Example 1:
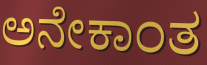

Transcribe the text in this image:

ಅನೇಕಾಂತ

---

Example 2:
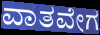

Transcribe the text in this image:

ವಾತವೇಗ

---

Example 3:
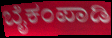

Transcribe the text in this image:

ಬೈಕಂಪಾಡಿ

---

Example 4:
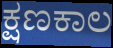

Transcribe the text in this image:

ಕ್ಷಣಕಾಲ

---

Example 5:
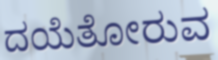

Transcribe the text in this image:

ದಯೆತೋರುವ